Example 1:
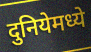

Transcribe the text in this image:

दुनियेमध्ये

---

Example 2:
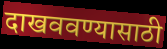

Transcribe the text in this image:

दाखववण्यासाठी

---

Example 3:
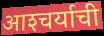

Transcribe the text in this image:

आश्‍चर्याची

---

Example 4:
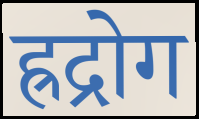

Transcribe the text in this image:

ह्रद्रोग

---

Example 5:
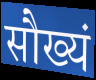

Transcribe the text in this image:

सौख्यं